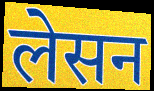
लेसन